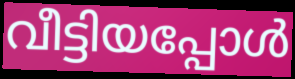
വീട്ടിയപ്പോൾ